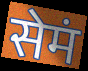
सेमं